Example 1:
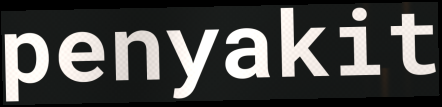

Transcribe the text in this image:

penyakit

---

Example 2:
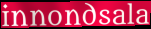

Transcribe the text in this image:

innondsala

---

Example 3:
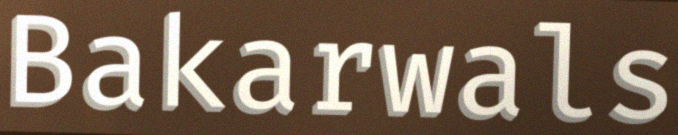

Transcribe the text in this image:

Bakarwals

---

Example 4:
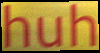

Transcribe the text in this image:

huh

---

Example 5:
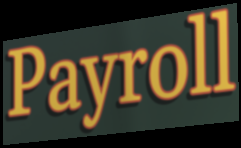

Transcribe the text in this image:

Payroll